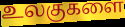
உலகுகளை